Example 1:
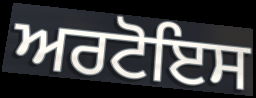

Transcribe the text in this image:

ਅਰਟੋਇਸ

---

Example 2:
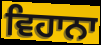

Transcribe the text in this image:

ਵਿਹਾਨਾ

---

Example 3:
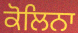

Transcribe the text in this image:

ਕੋਲਿਨਾ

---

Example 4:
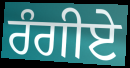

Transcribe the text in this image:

ਰੰਗੀਏ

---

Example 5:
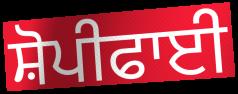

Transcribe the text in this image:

ਸ਼ੋਪੀਫਾਈ